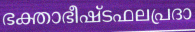
ഭക്താഭീഷ്ടഫലപ്രദാ